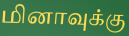
மினாவுக்கு